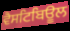
ਵੈਸਟਿਬਿਊਲ